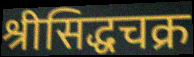
श्रीसिद्धचक्र